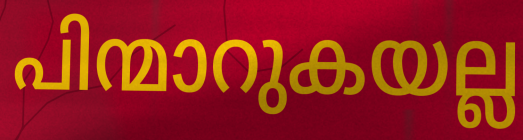
പിന്മാറുകയല്ല